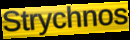
Strychnos